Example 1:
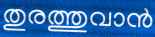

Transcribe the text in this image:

തുരത്തുവാൻ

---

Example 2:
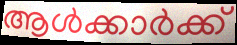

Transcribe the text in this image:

ആൾക്കാർക്ക്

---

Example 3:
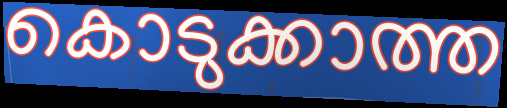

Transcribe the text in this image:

കൊടുക്കാത്ത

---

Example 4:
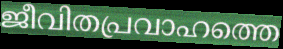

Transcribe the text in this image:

ജീവിതപ്രവാഹത്തെ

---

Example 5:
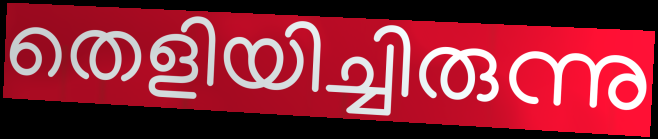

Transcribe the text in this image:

തെളിയിച്ചിരുന്നു